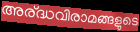
അര്ദ്ധവിരാമങ്ങളുടെ